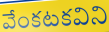
వేంకటకవిని